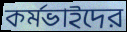
কর্মভাইদের